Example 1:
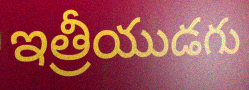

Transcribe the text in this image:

ఇత్రీయుడగు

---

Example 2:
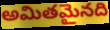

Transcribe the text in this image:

అమితమైనది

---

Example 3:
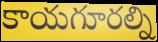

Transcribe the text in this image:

కాయగూరల్ని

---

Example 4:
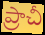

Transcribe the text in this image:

ప్రాచీ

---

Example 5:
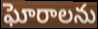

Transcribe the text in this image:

ఘోరాలను